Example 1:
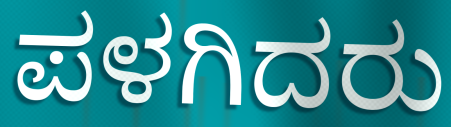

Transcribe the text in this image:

ಪಳಗಿದರು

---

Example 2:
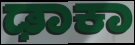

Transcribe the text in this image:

ಢಾಕಾ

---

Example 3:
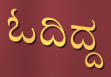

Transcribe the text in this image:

ಓದಿದ್ದ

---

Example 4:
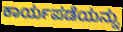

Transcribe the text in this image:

ಕಾರ್ಯಪಡೆಯನ್ನು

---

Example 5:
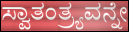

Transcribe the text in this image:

ಸ್ವಾತಂತ್ರ್ಯವನ್ನೇ